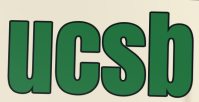
ucsb